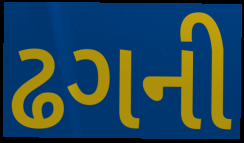
ઢગની